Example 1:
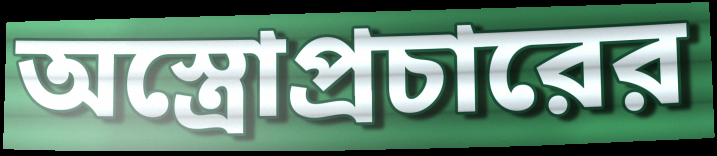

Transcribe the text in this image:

অস্ত্রোপ্রচারের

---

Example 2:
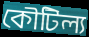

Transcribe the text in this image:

কৌটিল্য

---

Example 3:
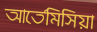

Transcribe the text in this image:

আর্তেমিসিয়া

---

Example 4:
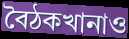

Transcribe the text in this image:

বৈঠকখানাও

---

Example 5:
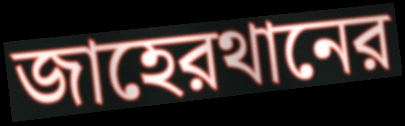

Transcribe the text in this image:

জাহেরথানের